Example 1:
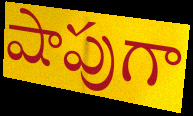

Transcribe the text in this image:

షాపుగా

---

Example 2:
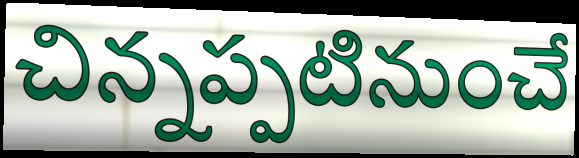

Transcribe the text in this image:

చిన్నప్పటినుంచే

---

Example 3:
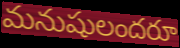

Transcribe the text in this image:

మనుషులందరూ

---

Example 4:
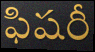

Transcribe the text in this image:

ఫిషరీ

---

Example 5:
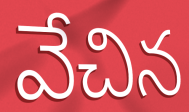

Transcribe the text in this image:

వేచిన